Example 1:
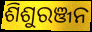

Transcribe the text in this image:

ଶିଶୁରଞ୍ଜନ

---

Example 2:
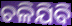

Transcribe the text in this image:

ଚଳିଯିବି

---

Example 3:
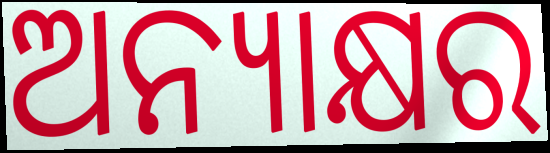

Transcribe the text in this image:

ଅନ୍ୟାକ୍ଷର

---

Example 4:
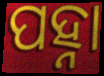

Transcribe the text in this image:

ପହ୍ନା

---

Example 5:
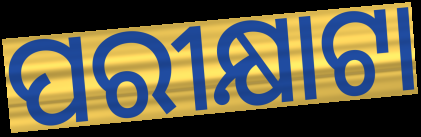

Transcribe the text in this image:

ପରୀକ୍ଷାଟା